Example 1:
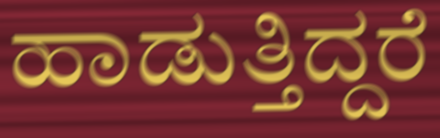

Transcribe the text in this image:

ಹಾಡುತ್ತಿದ್ದರೆ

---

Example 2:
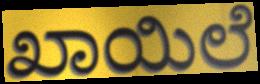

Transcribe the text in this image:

ಖಾಯಿಲೆ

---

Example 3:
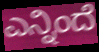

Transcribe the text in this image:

ಎನ್ನಿಂದೆ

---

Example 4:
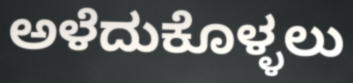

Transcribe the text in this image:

ಅಳೆದುಕೊಳ್ಳಲು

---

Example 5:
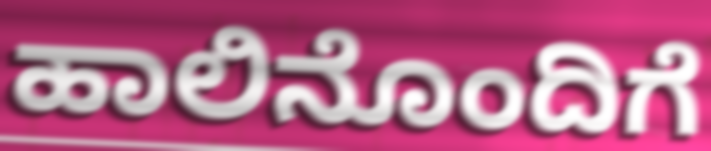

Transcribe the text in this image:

ಹಾಲಿನೊಂದಿಗೆ